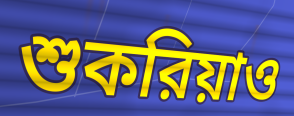
শুকরিয়াও